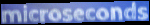
microseconds